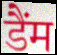
डैंम